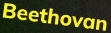
Beethovan